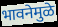
भावनेमुळे